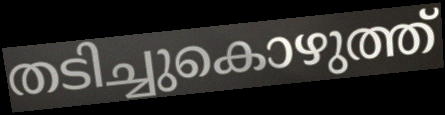
തടിച്ചുകൊഴുത്ത്